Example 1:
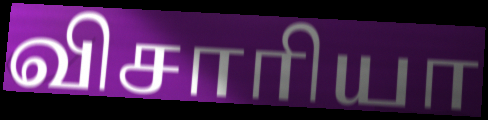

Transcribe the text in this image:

விசாரியா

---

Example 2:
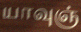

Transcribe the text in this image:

யாவுஞ்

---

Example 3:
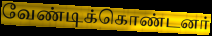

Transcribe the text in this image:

வேண்டிக்கொண்டனர்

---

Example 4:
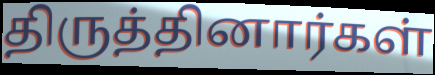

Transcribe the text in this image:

திருத்தினார்கள்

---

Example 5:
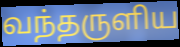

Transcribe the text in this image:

வந்தருளிய